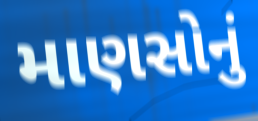
માણસોનું